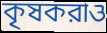
কৃষকরাও